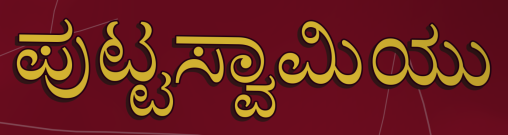
ಪುಟ್ಟಸ್ವಾಮಿಯು